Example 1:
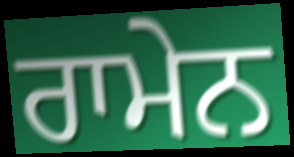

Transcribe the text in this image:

ਰਾਮੇਨ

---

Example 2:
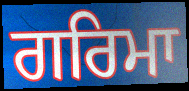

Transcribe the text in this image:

ਗਰਿਮਾ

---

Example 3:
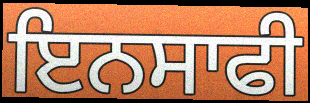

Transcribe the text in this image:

ਇਨਸਾਫੀ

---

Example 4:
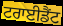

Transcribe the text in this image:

ਟਰਾਈਡੈਂਟ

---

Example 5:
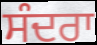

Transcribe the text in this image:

ਸੰਦਰਾ